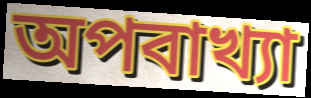
অপবাখ্যা